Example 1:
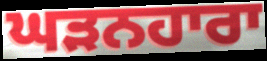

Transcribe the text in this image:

ਘੜਨਹਾਰਾ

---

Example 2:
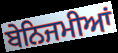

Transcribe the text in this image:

ਬੇਨਿਜਮੀਆਂ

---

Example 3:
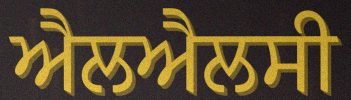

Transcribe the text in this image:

ਐਲਐਲਸੀ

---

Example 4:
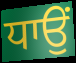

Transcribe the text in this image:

ਧਾਉਂ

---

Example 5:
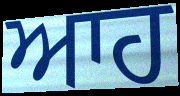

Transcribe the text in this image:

ਆਹ